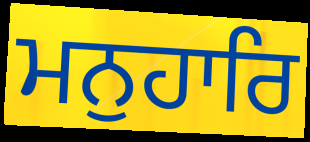
ਮਨੁਹਾਰਿ